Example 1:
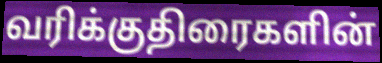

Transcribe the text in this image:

வரிக்குதிரைகளின்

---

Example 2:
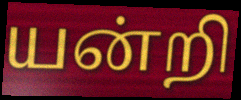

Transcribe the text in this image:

யன்றி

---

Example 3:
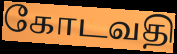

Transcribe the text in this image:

கோடவதி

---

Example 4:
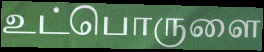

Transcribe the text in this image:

உட்பொருளை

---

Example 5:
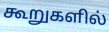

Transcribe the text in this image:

கூறுகளில்